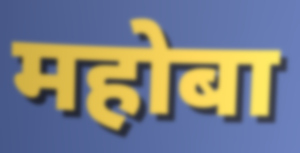
महोबा